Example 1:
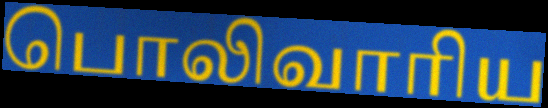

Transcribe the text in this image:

பொலிவாரிய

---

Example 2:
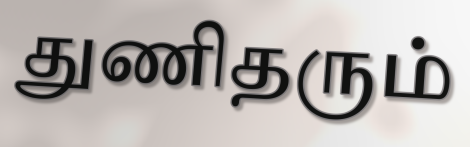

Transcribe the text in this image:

துணிதரும்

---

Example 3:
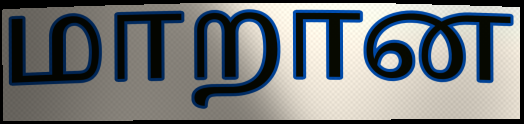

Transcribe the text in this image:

மாறான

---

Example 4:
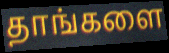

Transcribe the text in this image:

தாங்களை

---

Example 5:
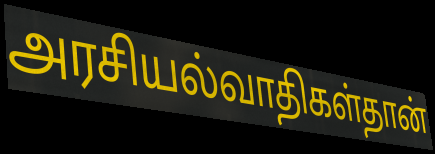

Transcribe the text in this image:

அரசியல்வாதிகள்தான்